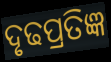
ଦୃଢପ୍ରତିଜ୍ଞ